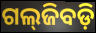
ଗଲ୍‌ଜିବଡ଼ି